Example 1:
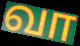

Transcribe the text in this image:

வா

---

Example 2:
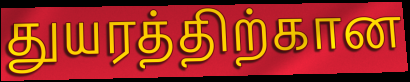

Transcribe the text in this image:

துயரத்திற்கான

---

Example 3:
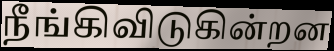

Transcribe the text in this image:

நீங்கிவிடுகின்றன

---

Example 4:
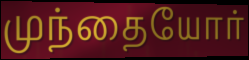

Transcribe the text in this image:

முந்தையோர்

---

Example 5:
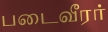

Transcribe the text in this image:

படைவீரர்